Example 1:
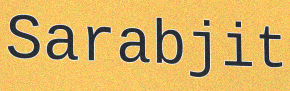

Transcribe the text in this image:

Sarabjit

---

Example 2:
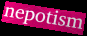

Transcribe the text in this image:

nepotism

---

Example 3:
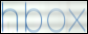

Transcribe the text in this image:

hbox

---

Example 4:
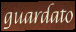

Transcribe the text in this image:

guardato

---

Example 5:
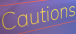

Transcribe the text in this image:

Cautions